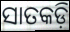
ସାତକଡ଼ି